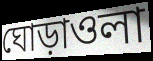
ঘোড়াওলা